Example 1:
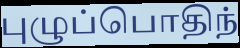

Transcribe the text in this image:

புழுப்பொதிந்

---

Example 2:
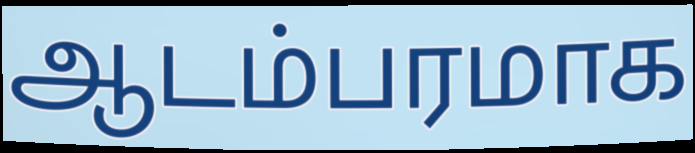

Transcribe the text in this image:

ஆடம்பரமாக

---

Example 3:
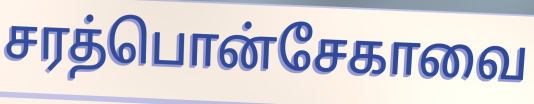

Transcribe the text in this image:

சரத்பொன்சேகாவை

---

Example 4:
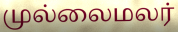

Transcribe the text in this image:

முல்லைமலர்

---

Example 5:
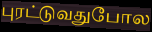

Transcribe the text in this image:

புரட்டுவதுபோல